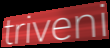
triveni